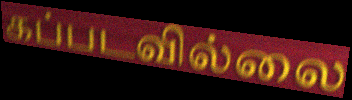
கப்படவில்லை